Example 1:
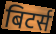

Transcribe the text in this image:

बिटर्स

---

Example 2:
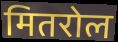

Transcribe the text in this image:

मितरोल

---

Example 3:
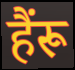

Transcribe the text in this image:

हैंरू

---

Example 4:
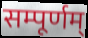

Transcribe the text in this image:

सम्पूर्णम्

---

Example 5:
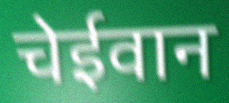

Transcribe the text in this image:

चेईवान